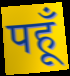
पहूँ